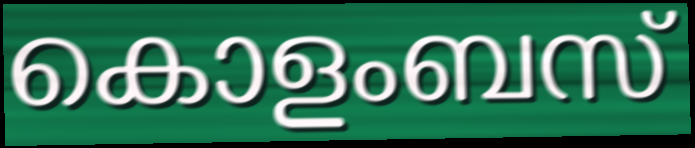
കൊളംബസ്